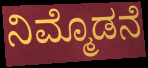
ನಿಮ್ಮೊಡನೆ